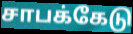
சாபக்கேடு